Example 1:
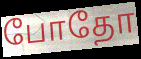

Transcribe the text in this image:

போதோ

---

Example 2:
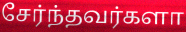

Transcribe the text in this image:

சேர்ந்தவர்களா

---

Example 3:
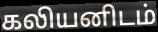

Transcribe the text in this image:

கலியனிடம்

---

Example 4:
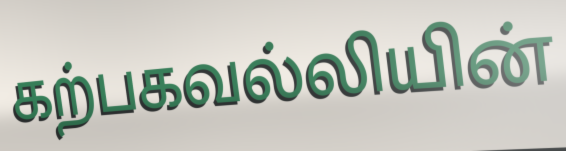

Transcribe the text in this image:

கற்பகவல்லியின்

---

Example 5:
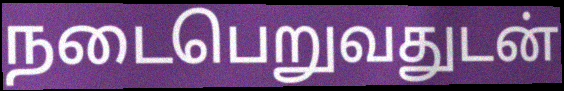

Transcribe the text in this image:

நடைபெறுவதுடன்